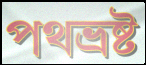
পথভ্ৰষ্ট